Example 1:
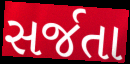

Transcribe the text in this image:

સર્જતા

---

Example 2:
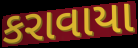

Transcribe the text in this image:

કરાવાયા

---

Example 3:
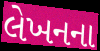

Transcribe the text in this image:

લેખનના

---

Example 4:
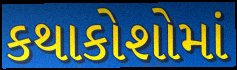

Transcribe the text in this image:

કથાકોશોમાં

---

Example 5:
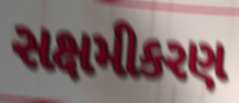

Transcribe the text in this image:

સક્ષમીકરણ